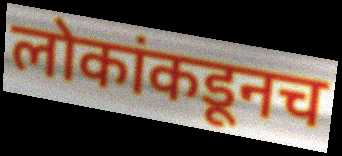
लोकांकडूनच